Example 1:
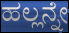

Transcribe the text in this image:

ಹಲ್ಲನ್ನೇ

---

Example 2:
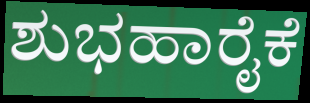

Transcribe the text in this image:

ಶುಭಹಾರೈಕೆ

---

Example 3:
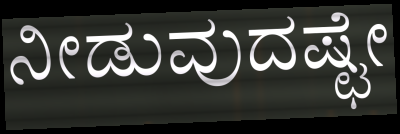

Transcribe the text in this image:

ನೀಡುವುದಷ್ಟೇ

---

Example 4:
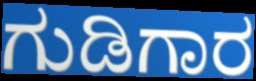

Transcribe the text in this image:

ಗುಡಿಗಾರ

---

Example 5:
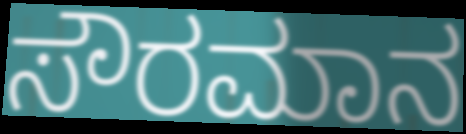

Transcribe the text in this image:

ಸೌರಮಾನ